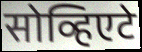
सोव्हिएटे